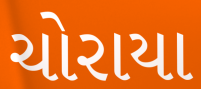
ચોરાયા